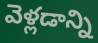
వెళ్లడాన్ని